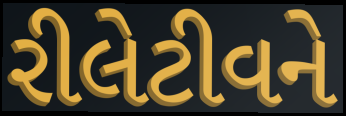
રીલેટીવને